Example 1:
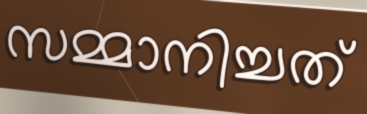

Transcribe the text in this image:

സമ്മാനിച്ചത്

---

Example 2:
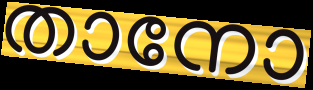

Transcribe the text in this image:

താനോ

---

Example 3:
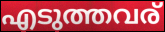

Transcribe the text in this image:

എടുത്തവര്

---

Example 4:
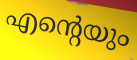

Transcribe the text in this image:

എന്റെയും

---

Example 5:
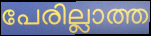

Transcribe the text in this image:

പേരില്ലാത്ത